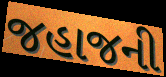
જહાજની